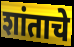
शांताचे